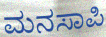
ಮನಸಾಪಿ